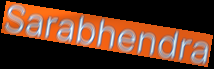
Sarabhendra